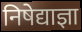
निषेद्याज्ञा